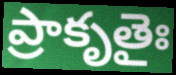
ప్రాకృతైః